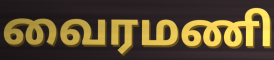
வைரமணி